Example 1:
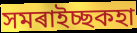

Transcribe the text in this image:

সমৰাইচ্ছকহা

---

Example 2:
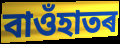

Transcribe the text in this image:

বাওঁহাতৰ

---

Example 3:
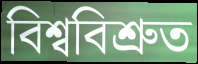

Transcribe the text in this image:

বিশ্ববিশ্ৰুত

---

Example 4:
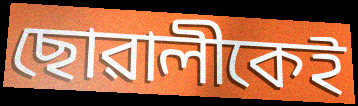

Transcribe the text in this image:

ছোৱালীকেই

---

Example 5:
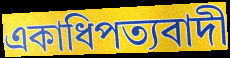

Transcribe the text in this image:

একাধিপত্যবাদী